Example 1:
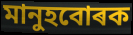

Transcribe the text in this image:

মানুহবোৰক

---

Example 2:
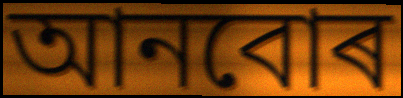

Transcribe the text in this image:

আনবোৰ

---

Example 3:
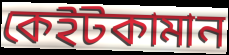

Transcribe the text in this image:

কেইটকামান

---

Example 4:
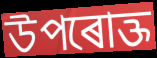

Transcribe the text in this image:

উপৰোক্ত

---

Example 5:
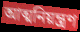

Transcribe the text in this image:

আত্মনিয়ন্ত্ৰণ